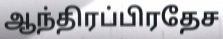
ஆந்திரப்பிரதேச